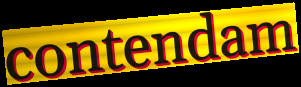
contendam